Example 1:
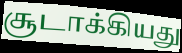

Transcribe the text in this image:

சூடாக்கியது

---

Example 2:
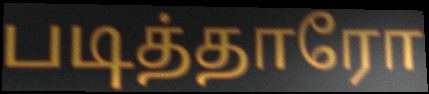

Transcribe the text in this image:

படித்தாரோ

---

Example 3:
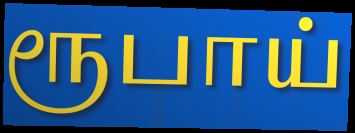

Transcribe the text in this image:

ரூபாய்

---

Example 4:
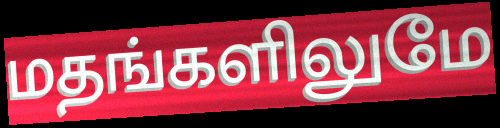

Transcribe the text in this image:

மதங்களிலுமே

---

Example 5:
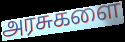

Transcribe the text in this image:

அரசுகளை